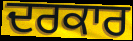
ਦਰਕਾਰ